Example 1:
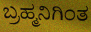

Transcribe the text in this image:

ಬ್ರಹ್ಮನಿಗಿಂತ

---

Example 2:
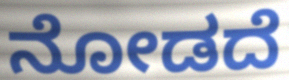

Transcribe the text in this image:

ನೋಡದೆ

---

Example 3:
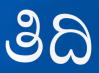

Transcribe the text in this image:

ತಿದಿ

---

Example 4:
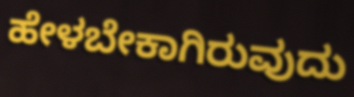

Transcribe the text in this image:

ಹೇಳಬೇಕಾಗಿರುವುದು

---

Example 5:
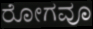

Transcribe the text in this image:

ರೋಗವೂ